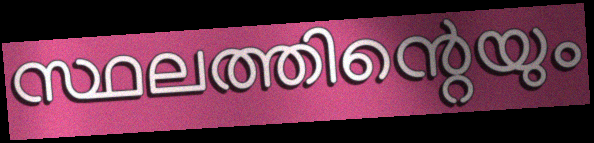
സ്ഥലത്തിന്റെയും